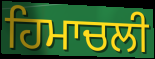
ਹਿਮਾਚਲੀ